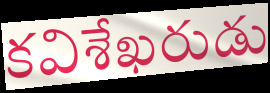
కవిశేఖరుడు